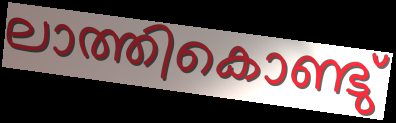
ലാത്തികൊണ്ടു്